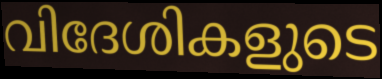
വിദേശികളുടെ